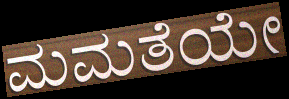
ಮಮತೆಯೇ